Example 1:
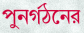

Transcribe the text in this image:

পুনর্গঠনের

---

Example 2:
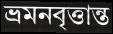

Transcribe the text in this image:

ভ্রমনবৃত্তান্ত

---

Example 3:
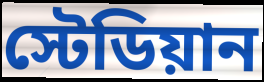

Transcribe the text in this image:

স্টেডিয়ান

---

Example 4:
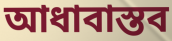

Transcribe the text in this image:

আধাবাস্তব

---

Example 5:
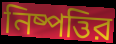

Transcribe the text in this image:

নিষ্পত্তির